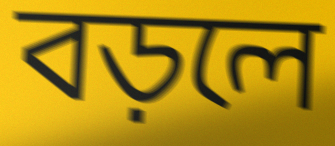
বড়লে